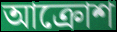
আক্রোশ